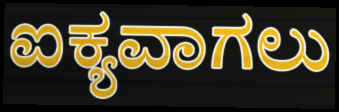
ಐಕ್ಯವಾಗಲು